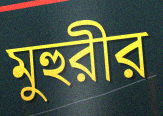
মুহুরীর